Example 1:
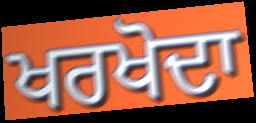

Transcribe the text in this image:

ਖਰਖੋਦਾ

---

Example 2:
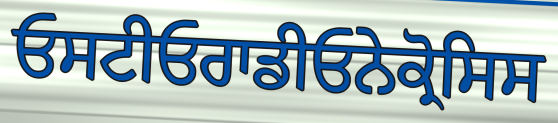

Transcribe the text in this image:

ਓਸਟੀਓਰਾਡੀਓਨੇਕ੍ਰੋਸਿਸ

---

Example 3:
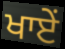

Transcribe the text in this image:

ਖਾਏਂ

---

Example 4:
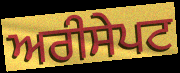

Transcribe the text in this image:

ਅਰੀਸੇਪਟ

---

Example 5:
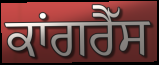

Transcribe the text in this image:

ਕਾਂਗਰੈੱਸ